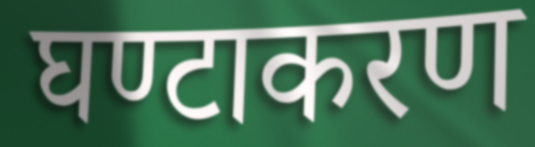
घण्टाकरण